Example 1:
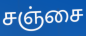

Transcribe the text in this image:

சஞ்சை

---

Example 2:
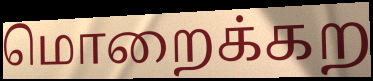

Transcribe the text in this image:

மொறைக்கற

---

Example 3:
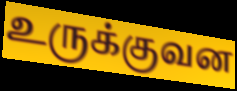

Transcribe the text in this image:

உருக்குவன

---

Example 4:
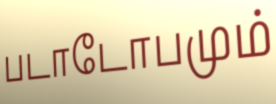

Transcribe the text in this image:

படாடோபமும்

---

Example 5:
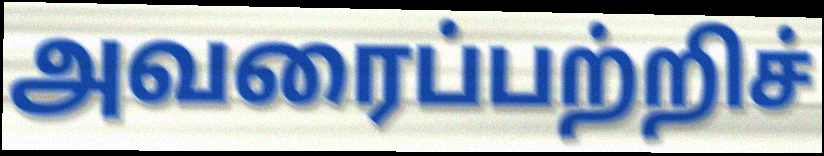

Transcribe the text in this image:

அவரைப்பற்றிச்